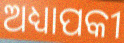
ଅଧ୍ୟାପକୀ